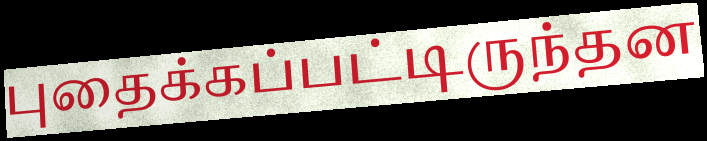
புதைக்கப்பட்டிருந்தன